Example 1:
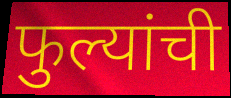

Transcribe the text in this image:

फुल्यांची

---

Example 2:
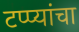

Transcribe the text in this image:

टप्प्यांचा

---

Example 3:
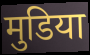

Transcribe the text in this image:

मुडिया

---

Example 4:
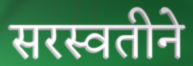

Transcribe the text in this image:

सरस्वतीने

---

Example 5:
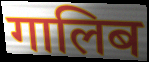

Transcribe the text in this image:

गालिब